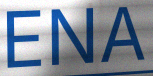
ENA